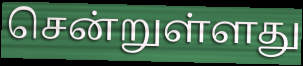
சென்றுள்ளது